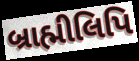
બ્રાહ્મીલિપિ